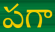
పగా